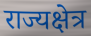
राज्यक्षेत्र